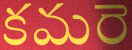
కమరె